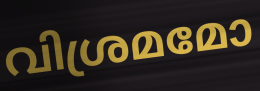
വിശ്രമമോ